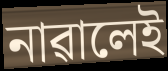
নাৱালেই